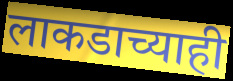
लाकडाच्याही